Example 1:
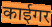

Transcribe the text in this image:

काईगर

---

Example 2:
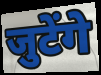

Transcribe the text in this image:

जुटेंगे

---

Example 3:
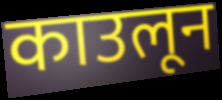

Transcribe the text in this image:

काउलून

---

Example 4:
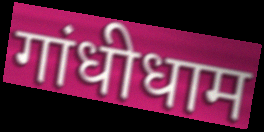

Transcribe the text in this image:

गांधीधाम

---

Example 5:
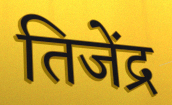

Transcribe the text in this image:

तिजेंद्र